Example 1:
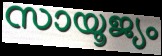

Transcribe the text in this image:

സായൂജ്യം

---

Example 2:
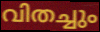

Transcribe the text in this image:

വിതച്ചും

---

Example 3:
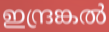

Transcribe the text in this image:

ഇന്ദ്രങ്കൽ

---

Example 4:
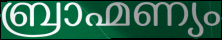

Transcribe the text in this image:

ബ്രാഹ്മണ്യം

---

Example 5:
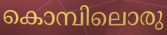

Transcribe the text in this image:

കൊമ്പിലൊരു